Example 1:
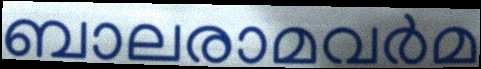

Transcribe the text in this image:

ബാലരാമവർമ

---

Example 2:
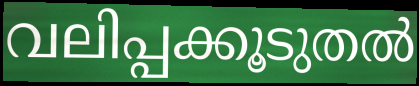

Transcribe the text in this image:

വലിപ്പക്കൂടുതൽ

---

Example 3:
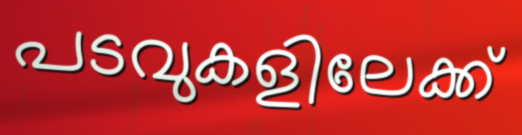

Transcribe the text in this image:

പടവുകളിലേക്ക്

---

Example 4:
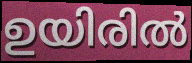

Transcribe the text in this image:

ഉയിരിൽ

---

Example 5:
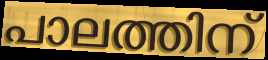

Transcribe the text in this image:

പാലത്തിന്